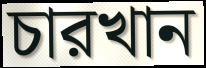
চারখান